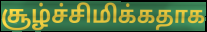
சூழ்ச்சிமிக்கதாக